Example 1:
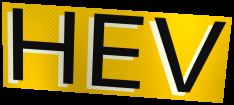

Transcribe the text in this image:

HEV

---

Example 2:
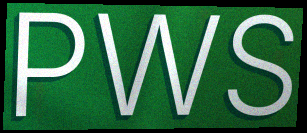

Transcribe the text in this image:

PWS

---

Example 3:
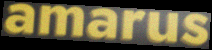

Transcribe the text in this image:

amarus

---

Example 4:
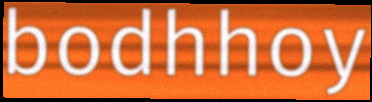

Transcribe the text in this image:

bodhhoy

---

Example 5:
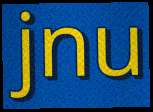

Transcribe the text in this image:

jnu